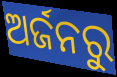
ଅର୍ଜନରୁ